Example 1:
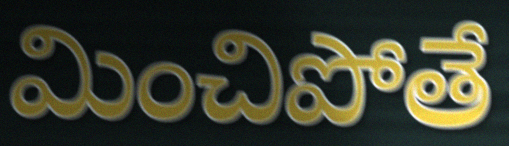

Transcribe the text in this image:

మించిపోతే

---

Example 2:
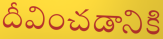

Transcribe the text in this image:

దీవించడానికి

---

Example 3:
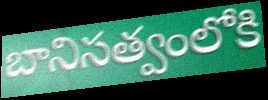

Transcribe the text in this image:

బానిసత్వంలోకి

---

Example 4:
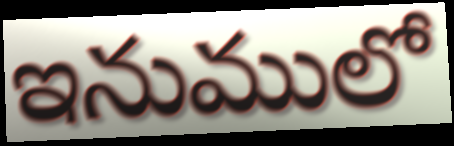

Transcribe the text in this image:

ఇనుములో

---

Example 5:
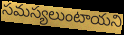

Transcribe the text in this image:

సమస్యలుంటాయని